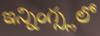
ఇన్నింగ్స్లలో